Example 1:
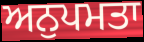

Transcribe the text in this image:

ਅਨੁਪਮਤਾ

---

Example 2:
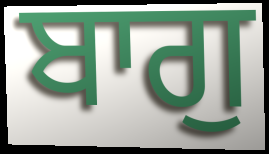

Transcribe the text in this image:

ਬਾਗੁ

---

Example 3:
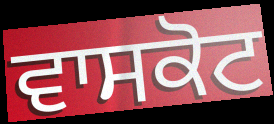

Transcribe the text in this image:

ਵਾਸਕੋਟ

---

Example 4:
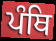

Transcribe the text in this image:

ਪੰਥਿ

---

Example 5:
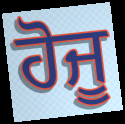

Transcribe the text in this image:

ਹੋਜੂ